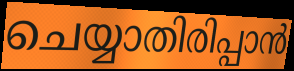
ചെയ്യാതിരിപ്പാൻ